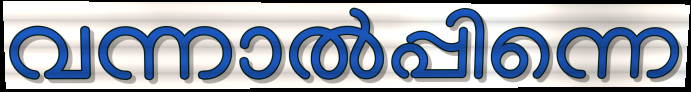
വന്നാൽപ്പിന്നെ